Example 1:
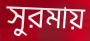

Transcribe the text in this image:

সুরমায়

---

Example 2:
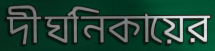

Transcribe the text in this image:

দীর্ঘনিকায়ের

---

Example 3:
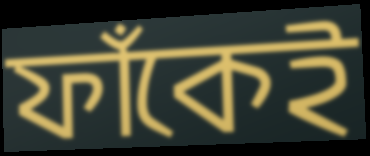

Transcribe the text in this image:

ফাঁকেই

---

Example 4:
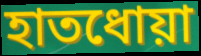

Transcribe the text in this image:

হাতধোয়া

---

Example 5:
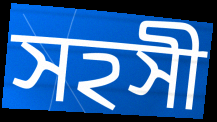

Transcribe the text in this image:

সহসী